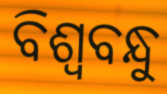
ବିଶ୍ୱବନ୍ଧୁ